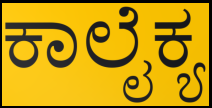
ಕಾಲೈಕ್ಯ